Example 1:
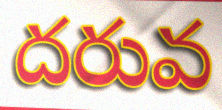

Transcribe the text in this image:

దరువ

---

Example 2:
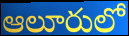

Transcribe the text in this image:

ఆలూరులో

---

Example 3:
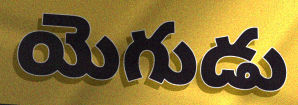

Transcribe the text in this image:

యెగుడు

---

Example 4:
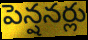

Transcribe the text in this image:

పెన్షనర్లు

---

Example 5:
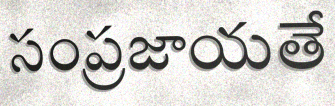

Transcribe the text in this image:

సంప్రజాయతే